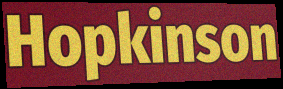
Hopkinson